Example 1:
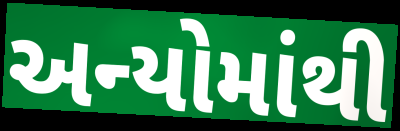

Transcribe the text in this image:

અન્યોમાંથી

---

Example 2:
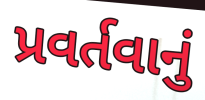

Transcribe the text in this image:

પ્રવર્તવાનું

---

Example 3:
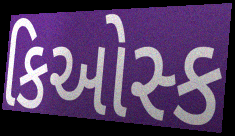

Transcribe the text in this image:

કિઓસ્ક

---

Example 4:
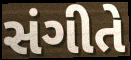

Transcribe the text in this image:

સંગીતે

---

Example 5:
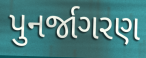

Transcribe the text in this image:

પુનર્જાગરણ